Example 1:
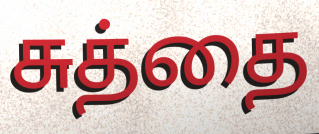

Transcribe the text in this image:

சுத்தை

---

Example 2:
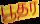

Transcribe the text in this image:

பூதர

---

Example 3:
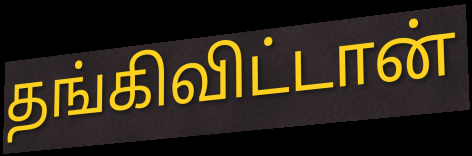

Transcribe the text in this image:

தங்கிவிட்டான்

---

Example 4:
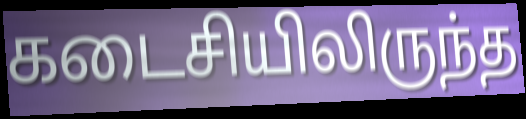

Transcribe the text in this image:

கடைசியிலிருந்த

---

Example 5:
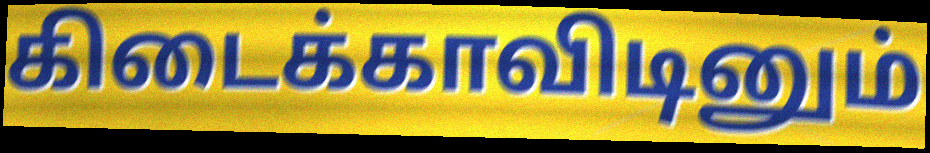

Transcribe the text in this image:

கிடைக்காவிடினும்